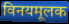
विनयमूलक